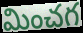
మించగ